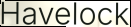
Havelock